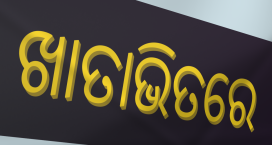
ଖାତାଭିତରେ